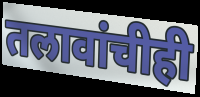
तलावांचीही